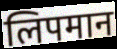
लिपमान